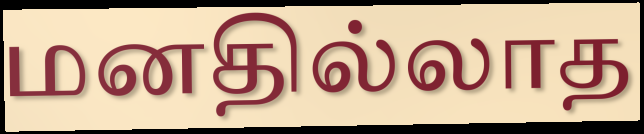
மனதில்லாத